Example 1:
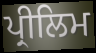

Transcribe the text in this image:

ਪ੍ਰੀਲਿਮ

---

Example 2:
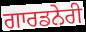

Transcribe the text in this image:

ਗਾਰਡਨੇਰੀ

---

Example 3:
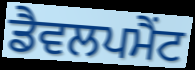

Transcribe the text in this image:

ਡੈਵਲਪਮੈਂਟ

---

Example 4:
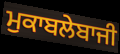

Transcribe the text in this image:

ਮੁਕਾਬਲੇਬਾਜੀ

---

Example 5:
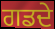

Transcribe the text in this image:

ਗਡਦੇ